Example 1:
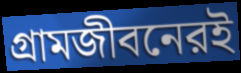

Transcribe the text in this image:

গ্রামজীবনেরই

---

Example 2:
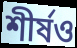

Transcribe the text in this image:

শীর্ষও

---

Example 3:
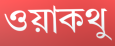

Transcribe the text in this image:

ওয়াকথু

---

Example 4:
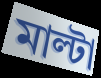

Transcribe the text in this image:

মাল্টা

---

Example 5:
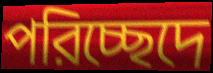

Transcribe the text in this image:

পরিচ্ছেদে